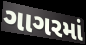
ગાગરમાં